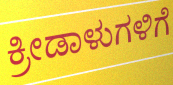
ಕ್ರೀಡಾಳುಗಳಿಗೆ